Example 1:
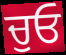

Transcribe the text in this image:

ਚੁਓ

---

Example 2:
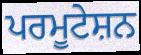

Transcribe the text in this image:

ਪਰਮੂਟੇਸ਼ਨ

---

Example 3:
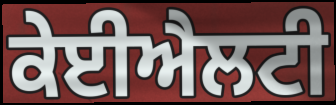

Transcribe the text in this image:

ਕੇਈਐਲਟੀ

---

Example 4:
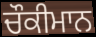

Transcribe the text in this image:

ਚੌਕੀਮਾਨ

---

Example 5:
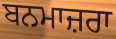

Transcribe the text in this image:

ਬਨਮਾਜ਼ਰਾ